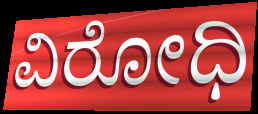
ವಿರೋಧಿ